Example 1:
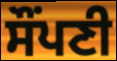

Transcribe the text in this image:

ਸੌਂਪਣੀ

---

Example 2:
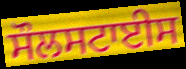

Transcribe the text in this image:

ਸੌਲਸਟਾਈਸ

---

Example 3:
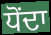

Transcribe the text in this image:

ਧੋਂਦਾ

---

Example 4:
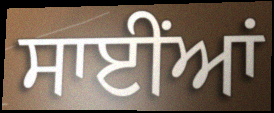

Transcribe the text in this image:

ਸਾਈਂਆਂ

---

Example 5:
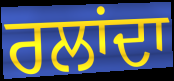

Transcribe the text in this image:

ਰਲਾਂਦਾ